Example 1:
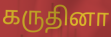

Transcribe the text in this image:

கருதினா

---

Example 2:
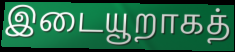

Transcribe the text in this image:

இடையூறாகத்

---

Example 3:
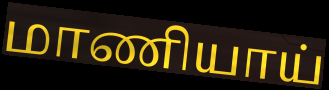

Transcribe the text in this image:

மாணியாய்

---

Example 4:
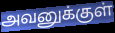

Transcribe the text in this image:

அவனுக்குள்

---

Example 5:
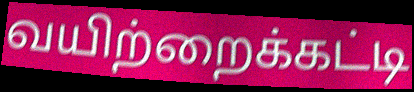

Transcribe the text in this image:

வயிற்றைக்கட்டி